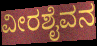
ವೀರಶೈವನ